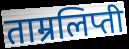
ताम्रलिप्ती